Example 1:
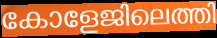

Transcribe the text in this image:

കോളേജിലെത്തി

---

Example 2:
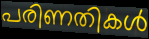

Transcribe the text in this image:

പരിണതികൾ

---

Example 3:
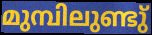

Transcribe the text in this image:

മുമ്പിലുണ്ടു്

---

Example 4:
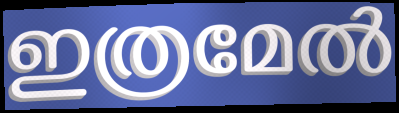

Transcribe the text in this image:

ഇത്രമേൽ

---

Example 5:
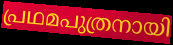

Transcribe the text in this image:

പ്രഥമപുത്രനായി